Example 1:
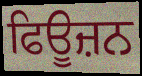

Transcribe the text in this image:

ਫਿਊਜ਼ਨ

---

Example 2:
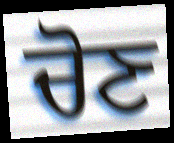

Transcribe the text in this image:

ਚੋਣ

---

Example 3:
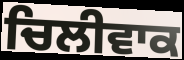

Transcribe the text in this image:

ਚਿਲੀਵਾਕ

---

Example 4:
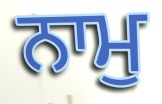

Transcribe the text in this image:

ਨਾਮੁ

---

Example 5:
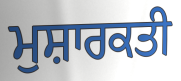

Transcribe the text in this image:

ਮੁਸ਼ਾਰਕਤੀ